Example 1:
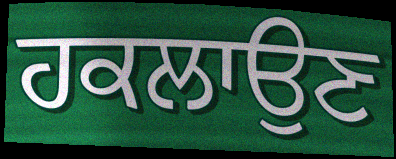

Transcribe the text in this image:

ਹਕਲਾਉਣ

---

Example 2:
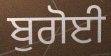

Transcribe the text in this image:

ਬੁਗੋਈ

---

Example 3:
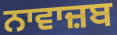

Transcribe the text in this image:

ਨਾਵਾਜ਼ਬ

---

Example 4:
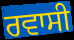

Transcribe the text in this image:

ਰਵਾਸੀ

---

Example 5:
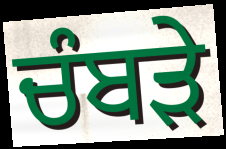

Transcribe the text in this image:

ਚੰਬੜੇ